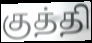
குத்தி